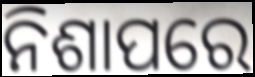
ନିଶାପରେ